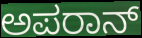
ಅಪರಾನ್